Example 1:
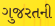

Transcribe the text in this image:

ગુજરતની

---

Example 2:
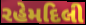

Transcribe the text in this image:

રહેમદિલી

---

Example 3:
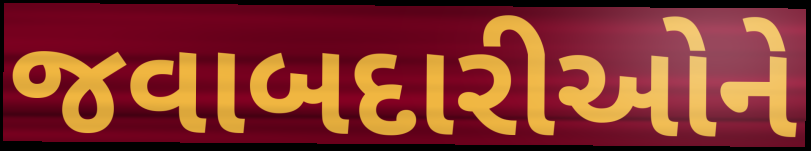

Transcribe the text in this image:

જવાબદારીઓને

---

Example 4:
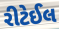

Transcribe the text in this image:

રીટેઈલ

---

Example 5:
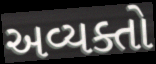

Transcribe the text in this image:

અવ્યક્તો